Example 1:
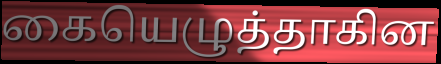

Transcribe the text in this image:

கையெழுத்தாகின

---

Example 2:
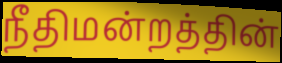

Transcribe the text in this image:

நீதிமன்றத்தின்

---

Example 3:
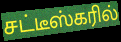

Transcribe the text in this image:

சட்டீஸ்கரில்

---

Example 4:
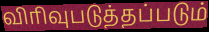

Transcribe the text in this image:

விரிவுபடுத்தப்படும்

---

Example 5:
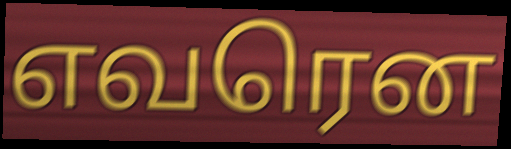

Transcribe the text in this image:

எவரென